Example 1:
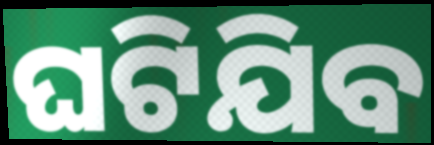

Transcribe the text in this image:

ଘଟିଯିବ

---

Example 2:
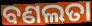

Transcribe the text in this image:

ବଣଲତା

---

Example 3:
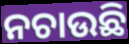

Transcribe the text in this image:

ନଚାଉଛି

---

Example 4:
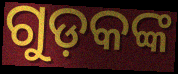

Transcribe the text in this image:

ଗୁଡ଼କଙ୍କ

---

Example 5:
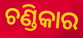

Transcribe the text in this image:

ଚଣ୍ଡିକାର